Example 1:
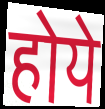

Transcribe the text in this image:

होये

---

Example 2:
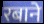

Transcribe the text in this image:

रबाने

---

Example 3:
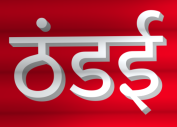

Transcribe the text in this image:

ठंडई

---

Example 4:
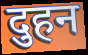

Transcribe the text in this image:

दुहन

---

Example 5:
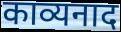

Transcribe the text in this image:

काव्यनाद